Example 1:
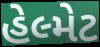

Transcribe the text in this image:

હેલ્મેટ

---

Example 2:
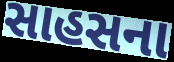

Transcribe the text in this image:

સાહસના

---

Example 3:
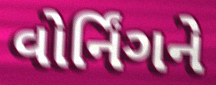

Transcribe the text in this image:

વોર્નિંગને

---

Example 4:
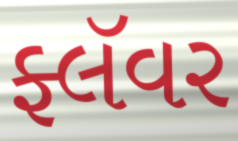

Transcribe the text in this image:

ફ્લૅવર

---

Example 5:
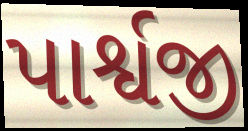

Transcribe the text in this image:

પાર્શ્વજી